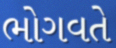
ભોગવતે